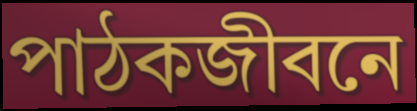
পাঠকজীবনে